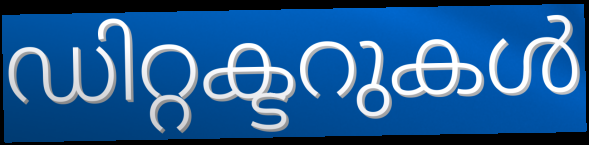
ഡിറ്റക്ടറുകൾ